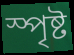
স্পৃষ্ট